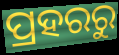
ପ୍ରହରରୁ